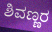
ಶಿವಣ್ಣರ